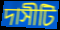
দাসীটি